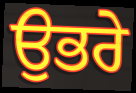
ਉਭਰੇ